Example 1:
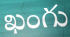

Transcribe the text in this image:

ఖంగు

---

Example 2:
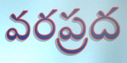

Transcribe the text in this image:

వరప్రద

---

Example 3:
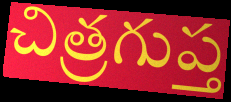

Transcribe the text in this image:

చిత్రగుప్త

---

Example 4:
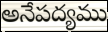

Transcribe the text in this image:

అనేపద్యము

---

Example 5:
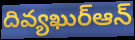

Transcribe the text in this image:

దివ్యఖుర్ఆన్